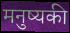
मनुष्यकी